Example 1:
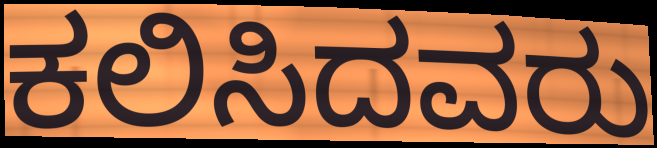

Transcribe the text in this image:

ಕಲಿಸಿದವರು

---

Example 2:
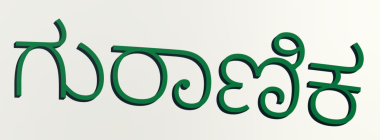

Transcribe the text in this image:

ಗುರಾಣಿಕ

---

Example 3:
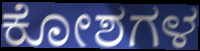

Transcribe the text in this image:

ಕೋಶಗಳ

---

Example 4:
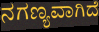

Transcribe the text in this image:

ನಗಣ್ಯವಾಗಿದೆ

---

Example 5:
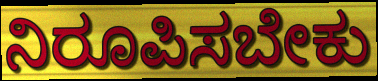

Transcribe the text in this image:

ನಿರೂಪಿಸಬೇಕು